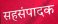
सहसंपादक